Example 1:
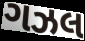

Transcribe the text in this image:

ગઝલ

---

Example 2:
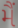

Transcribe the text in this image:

મૈં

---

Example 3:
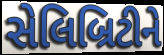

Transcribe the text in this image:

સેલિબ્રિટીને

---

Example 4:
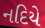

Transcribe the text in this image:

નદિયે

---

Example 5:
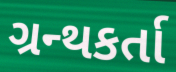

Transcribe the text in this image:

ગ્રન્થકર્તા